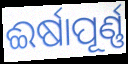
ଈର୍ଷାପୂର୍ଣ୍ଣ